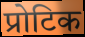
प्रोटिक